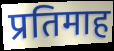
प्रतिमाह